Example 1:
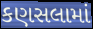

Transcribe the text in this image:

કણસલામાં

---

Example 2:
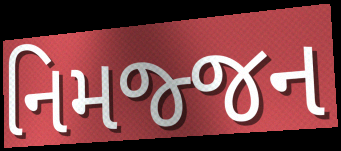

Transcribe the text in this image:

નિમજ્જન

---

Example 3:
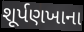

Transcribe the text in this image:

શૂર્પણખાના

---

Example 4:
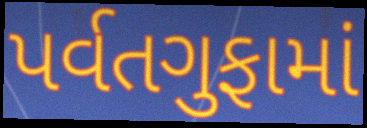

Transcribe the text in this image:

પર્વતગુફામાં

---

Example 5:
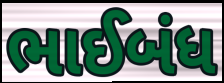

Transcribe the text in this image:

ભાઈબંધ